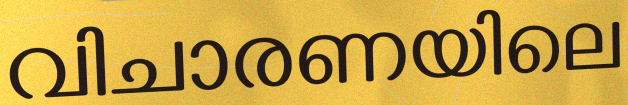
വിചാരണയിലെ